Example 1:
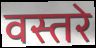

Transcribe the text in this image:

वस्तरे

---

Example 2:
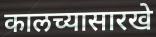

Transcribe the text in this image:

कालच्यासारखे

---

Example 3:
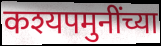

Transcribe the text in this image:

कश्यपमुनींच्या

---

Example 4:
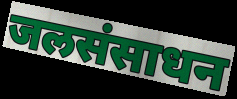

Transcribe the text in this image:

जलसंसाधन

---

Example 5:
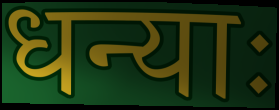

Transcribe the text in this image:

धन्याः